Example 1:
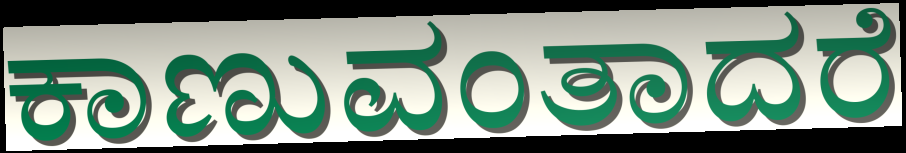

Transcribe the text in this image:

ಕಾಣುವಂತಾದರೆ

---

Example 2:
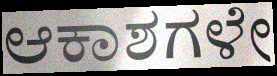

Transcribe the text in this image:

ಆಕಾಶಗಳೇ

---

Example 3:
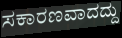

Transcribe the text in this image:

ಸಕಾರಣವಾದದ್ದು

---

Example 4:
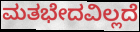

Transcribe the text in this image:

ಮತಭೇದವಿಲ್ಲದೆ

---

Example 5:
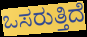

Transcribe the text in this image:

ಒಸರುತ್ತಿದೆ